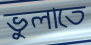
ভুলাতে